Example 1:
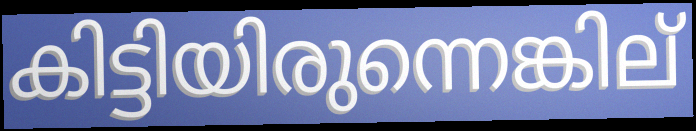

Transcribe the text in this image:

കിട്ടിയിരുന്നെങ്കില്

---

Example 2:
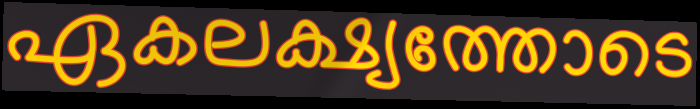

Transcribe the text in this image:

ഏകലക്ഷ്യത്തോടെ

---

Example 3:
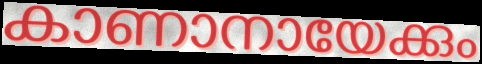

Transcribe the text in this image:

കാണാനായേക്കും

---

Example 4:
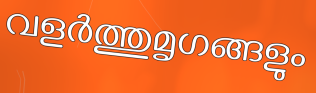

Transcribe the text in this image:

വളർത്തുമൃഗങ്ങളും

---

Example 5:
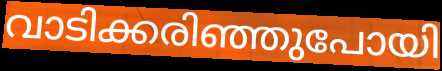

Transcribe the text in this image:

വാടിക്കരിഞ്ഞുപോയി